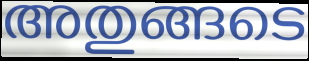
അതുങ്ങടെ